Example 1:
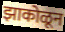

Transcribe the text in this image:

झाकोळून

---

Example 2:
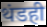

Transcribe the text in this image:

थंडही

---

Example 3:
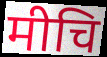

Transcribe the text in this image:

मीचि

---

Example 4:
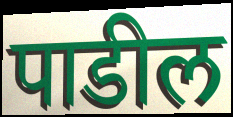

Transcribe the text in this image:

पाडील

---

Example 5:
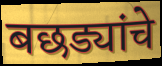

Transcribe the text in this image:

बछड्यांचे